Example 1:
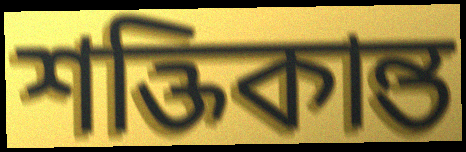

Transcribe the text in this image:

শক্তিকান্ত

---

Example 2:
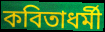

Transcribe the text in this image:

কবিতাধর্মী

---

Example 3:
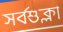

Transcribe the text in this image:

সর্বশুক্লা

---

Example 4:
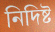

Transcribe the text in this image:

নিদিষ্ট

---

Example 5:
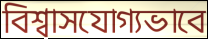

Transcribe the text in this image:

বিশ্বাসযোগ্যভাবে